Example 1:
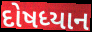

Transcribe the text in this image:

દોષધ્યાન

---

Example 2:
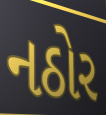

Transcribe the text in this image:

નઠોર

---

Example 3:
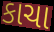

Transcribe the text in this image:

કાચા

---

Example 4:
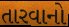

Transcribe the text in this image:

તારવાનો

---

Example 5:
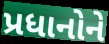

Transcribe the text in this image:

પ્રધાનોને